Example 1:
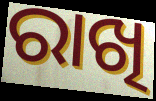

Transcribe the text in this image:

ରାଖି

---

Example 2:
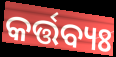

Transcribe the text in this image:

କର୍ତ୍ତବ୍ୟଃ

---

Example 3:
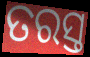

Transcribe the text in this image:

ତରସ୍ତ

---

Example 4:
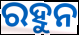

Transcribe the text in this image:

ରହୁନ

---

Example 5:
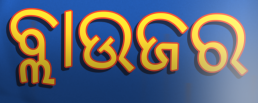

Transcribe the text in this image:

ବ୍ଲାଉଜର